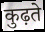
कुढ़ते